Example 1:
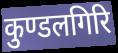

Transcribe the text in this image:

कुण्डलगिरि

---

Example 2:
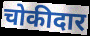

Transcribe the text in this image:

चोकीदार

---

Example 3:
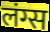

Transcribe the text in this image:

लंग्स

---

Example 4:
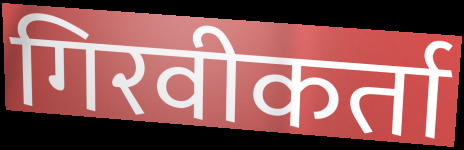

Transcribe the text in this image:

गिरवीकर्ता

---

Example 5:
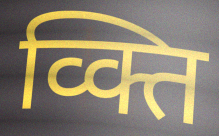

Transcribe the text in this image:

व्क्ति